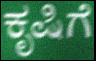
ಕೃಷಿಗೆ